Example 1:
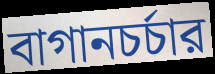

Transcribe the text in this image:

বাগানচর্চার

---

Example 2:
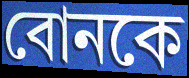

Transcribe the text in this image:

বোনকে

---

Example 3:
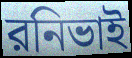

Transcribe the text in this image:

রনিভাই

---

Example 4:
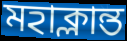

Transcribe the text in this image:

মহাক্লান্ত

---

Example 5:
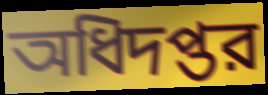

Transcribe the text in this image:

অধিদপ্তর